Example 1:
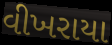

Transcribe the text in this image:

વીખરાયા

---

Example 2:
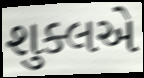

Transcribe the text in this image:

શુક્લએ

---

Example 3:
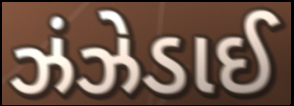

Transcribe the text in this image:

ઝંઝેડાઈ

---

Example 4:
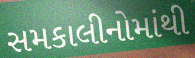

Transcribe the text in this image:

સમકાલીનોમાંથી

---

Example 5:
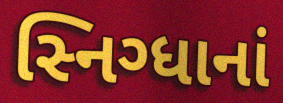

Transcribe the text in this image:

સ્નિગ્ધાનાં